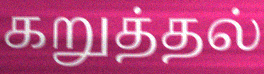
கறுத்தல்